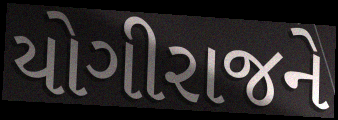
યોગીરાજને